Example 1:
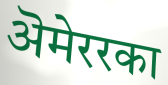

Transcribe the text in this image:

ऄमेररका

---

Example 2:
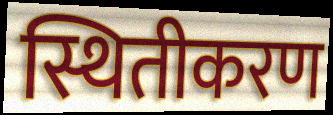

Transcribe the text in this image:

स्थितीकरण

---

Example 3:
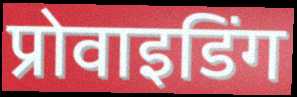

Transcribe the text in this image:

प्रोवाइडिंग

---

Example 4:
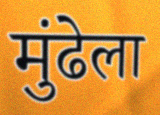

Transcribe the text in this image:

मुंढेला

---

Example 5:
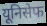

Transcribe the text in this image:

यूनिसेफ